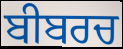
ਬੀਬਰਚ